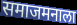
समाजमनाला